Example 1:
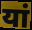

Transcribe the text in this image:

यां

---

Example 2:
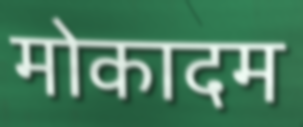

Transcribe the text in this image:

मोकादम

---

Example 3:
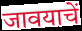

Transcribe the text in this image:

जावयाचें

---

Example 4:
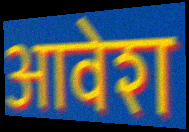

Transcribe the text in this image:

आवेश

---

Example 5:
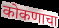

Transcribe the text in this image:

कोकणाचा